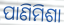
ପାଣିମିଶା